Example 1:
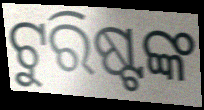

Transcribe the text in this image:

ଟୁରିଷ୍ଟଙ୍କ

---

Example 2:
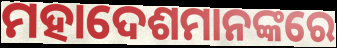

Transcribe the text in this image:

ମହାଦେଶମାନଙ୍କରେ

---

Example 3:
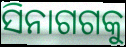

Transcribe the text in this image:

ସିନାଗଗକୁ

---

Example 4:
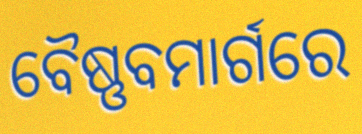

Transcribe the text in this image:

ବୈଷ୍ଣବମାର୍ଗରେ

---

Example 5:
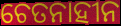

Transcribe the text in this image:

ଚେତନାହୀନ